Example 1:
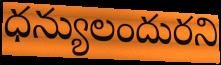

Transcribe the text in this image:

ధన్యులందురని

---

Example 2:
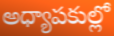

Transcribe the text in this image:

అధ్యాపకుల్లో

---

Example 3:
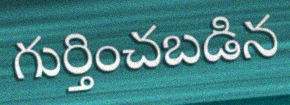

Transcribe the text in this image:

గుర్తించబడిన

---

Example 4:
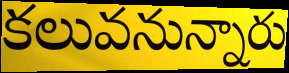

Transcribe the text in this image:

కలువనున్నారు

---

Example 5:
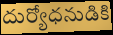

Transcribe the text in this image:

దుర్యోధనుడికి